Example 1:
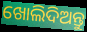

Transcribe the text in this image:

ଖୋଲିଦିଅନ୍ତୁ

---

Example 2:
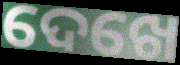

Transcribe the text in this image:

ଦେଖେ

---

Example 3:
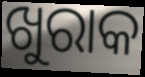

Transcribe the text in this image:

ଖୁରାକ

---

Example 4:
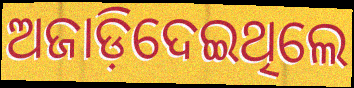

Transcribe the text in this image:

ଅଜାଡ଼ିଦେଇଥିଲେ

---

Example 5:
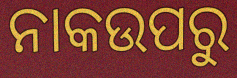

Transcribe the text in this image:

ନାକଉପରୁ